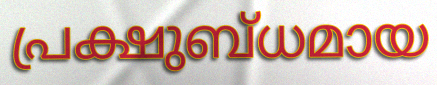
പ്രക്ഷുബ്ധമായ